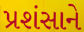
પ્રશંસાને